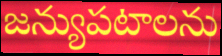
జన్యుపటాలను